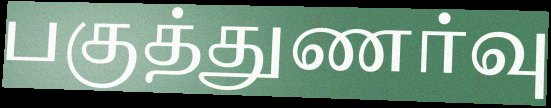
பகுத்துணர்வு